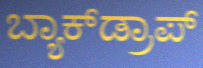
ಬ್ಯಾಕ್‌ಡ್ರಾಪ್